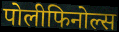
पोलीफिनोल्स